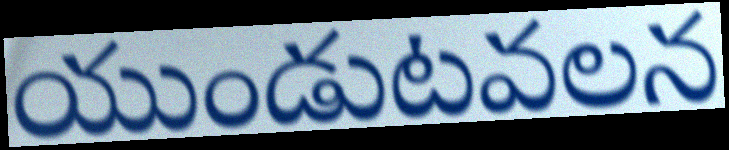
యుండుటవలన